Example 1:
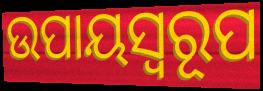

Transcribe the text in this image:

ଉପାୟସ୍ୱରୂପ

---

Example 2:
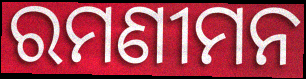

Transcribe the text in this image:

ରମଣୀମନ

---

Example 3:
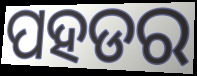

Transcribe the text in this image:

ପହଡର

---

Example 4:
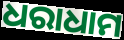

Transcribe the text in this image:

ଧରାଧାମ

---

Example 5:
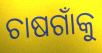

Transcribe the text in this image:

ଚାଷଗାଁକୁ